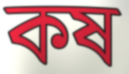
কষ